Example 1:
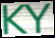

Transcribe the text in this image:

KY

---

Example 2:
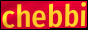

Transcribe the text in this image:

chebbi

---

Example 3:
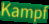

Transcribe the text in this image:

Kampf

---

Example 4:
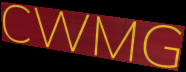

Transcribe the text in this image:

CWMG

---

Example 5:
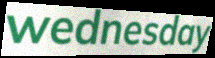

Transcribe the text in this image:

wednesday